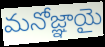
మనోజ్ఞాయై